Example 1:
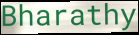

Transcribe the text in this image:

Bharathy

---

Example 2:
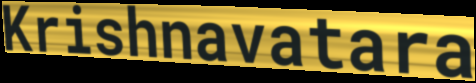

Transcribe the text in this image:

Krishnavatara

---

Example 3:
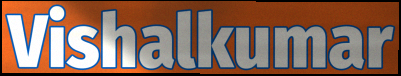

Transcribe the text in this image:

Vishalkumar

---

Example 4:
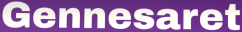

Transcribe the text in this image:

Gennesaret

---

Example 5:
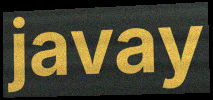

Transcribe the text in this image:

javay